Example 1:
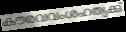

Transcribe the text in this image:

കൗരവവംശഹത്യക്കു്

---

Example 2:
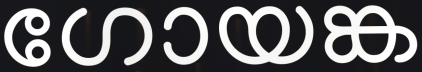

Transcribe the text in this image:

ഗോയങ്ക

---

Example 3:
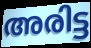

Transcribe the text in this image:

അരിട്ട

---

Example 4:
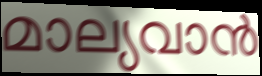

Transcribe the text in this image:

മാല്യവാൻ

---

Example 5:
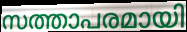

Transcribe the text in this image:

സത്താപരമായി